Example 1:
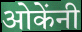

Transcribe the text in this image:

ओकेंनी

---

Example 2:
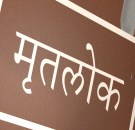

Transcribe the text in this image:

मृतलोक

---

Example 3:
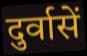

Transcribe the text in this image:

दुर्वासें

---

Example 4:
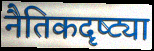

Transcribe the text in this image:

नैतिकदृष्ट्या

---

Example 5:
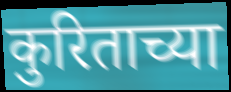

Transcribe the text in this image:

कुरिताच्या